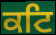
ਕਟਿ